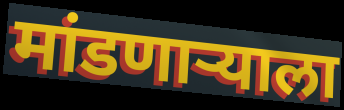
मांडणाऱ्याला